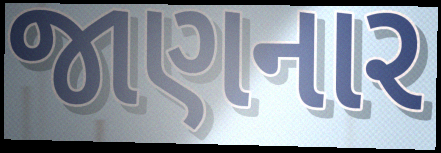
જાણનાર